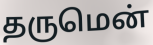
தருமென்